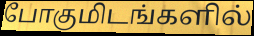
போகுமிடங்களில்